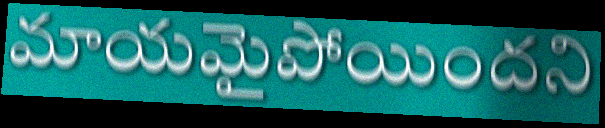
మాయమైపోయిందని